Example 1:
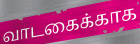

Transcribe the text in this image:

வாடகைக்காக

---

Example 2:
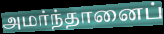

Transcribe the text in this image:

அமர்ந்தானைப்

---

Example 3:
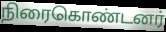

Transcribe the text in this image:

நிரைகொண்டனர்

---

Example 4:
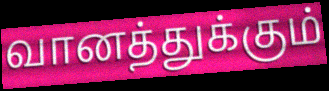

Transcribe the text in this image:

வானத்துக்கும்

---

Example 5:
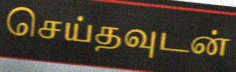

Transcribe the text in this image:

செய்தவுடன்